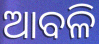
ଆବଳି